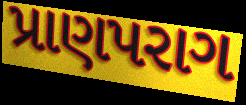
પ્રાણપરાગ